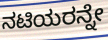
ನಟಿಯರನ್ನೇ